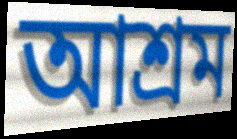
আশ্রম